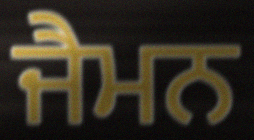
ਜੈਮਨ